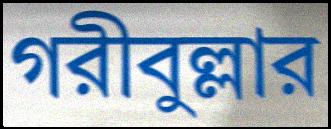
গরীবুল্লার